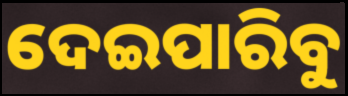
ଦେଇପାରିବୁ